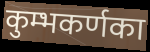
कुम्भकर्णका